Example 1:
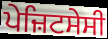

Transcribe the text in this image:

ਪੇਜ਼ਿਟਸੇਸੀ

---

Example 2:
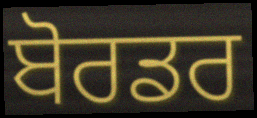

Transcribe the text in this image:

ਬੋਰਡਰ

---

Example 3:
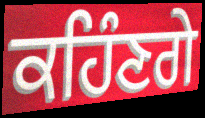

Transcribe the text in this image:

ਕਹਿੰਣਗੇ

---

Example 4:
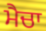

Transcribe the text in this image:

ਮੈਚਾ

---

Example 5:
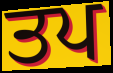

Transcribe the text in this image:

ਤਪ